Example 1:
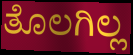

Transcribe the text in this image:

ತೊಲಗಿಲ್ಲ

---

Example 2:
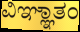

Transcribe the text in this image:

ವಿಞ್ಞಾತಂ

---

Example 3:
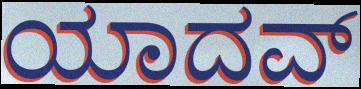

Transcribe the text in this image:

ಯಾದವ್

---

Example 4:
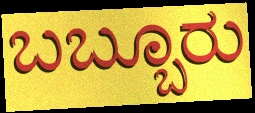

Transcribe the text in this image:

ಬಬ್ಬೂರು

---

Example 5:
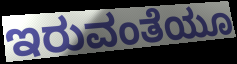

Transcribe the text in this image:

ಇರುವಂತೆಯೂ